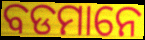
ବଡମାନେ